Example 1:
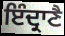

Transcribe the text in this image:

ਇੰਦ੍ਰਾਣੈ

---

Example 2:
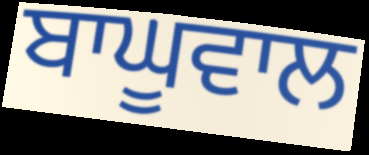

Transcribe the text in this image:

ਬਾਘੂਵਾਲ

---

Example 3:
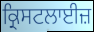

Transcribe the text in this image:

ਕ੍ਰਿਸਟਲਾਈਜ਼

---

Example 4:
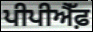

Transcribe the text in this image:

ਪੀਪੀਐੱਫ਼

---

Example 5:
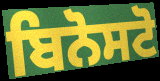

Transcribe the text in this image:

ਬਿਨੋਸਟੋ